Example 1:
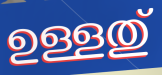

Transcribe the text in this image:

ഉള്ളതു്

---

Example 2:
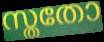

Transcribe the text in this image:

സ്തതോ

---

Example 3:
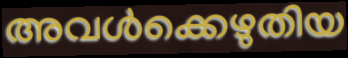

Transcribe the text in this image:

അവൾക്കെഴുതിയ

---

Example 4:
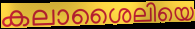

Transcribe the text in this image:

കലാശൈലിയെ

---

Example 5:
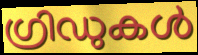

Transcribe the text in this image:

ഗ്രിഡുകൾ